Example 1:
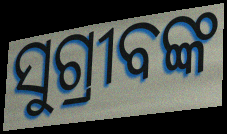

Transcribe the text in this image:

ସୁଗ୍ରୀବଙ୍କ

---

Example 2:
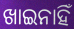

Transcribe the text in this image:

ଖାଇନାହିଁ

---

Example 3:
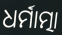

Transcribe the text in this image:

ଧର୍ମାତ୍ମା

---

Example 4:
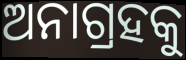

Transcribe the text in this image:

ଅନାଗ୍ରହକୁ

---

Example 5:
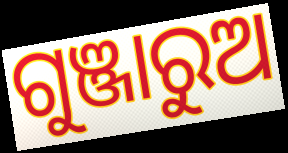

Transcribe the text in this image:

ଗୁଞ୍ଜାରୁଅ